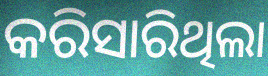
କରିସାରିଥିଲା